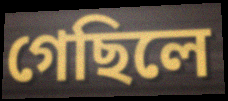
গেছিলে